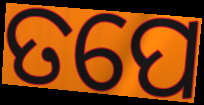
ତପେ